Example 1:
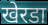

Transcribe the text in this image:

खेरडा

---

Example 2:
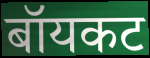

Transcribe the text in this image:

बॉयकट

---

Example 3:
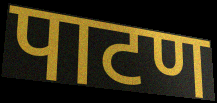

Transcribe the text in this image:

पाटण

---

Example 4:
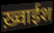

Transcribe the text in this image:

ख़्वाईश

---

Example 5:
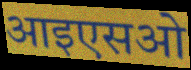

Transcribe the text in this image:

आइएसओ